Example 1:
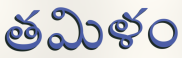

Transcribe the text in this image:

తమిళం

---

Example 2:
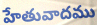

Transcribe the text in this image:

హేతువాదము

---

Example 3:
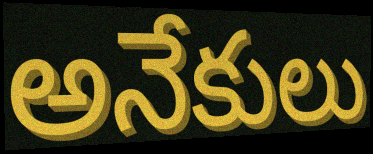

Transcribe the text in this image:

అనేకులు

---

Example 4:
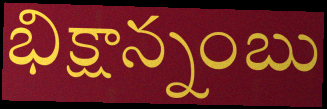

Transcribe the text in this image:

భిక్షాన్నంబు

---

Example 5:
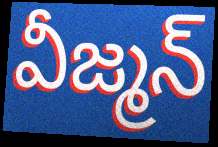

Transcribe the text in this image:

వీజ్మన్